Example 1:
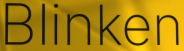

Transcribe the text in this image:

Blinken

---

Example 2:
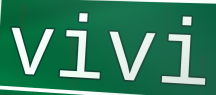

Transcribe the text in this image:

vivi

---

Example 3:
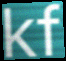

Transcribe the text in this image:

kf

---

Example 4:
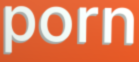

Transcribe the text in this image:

porn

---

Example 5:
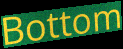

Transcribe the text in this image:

Bottom